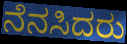
ನೆನಸಿದರು